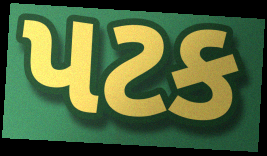
પટક